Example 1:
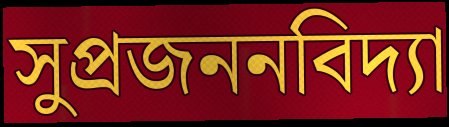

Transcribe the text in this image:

সুপ্রজননবিদ্যা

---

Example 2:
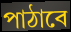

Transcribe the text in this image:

পাঠাবে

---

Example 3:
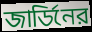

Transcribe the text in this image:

জার্ডিনের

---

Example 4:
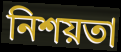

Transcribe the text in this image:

নিশয়তা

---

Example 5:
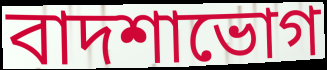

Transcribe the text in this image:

বাদশাভোগ